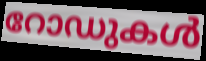
റോഡുകൾ